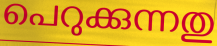
പെറുക്കുന്നതു